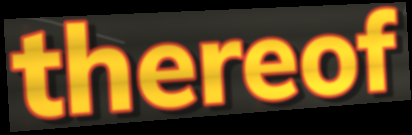
thereof